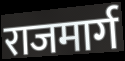
राजमार्ग